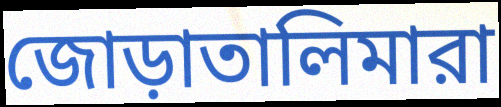
জোড়াতালিমারা